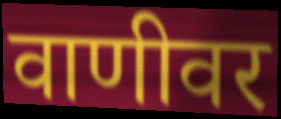
वाणीवर